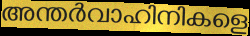
അന്തർവാഹിനികളെ